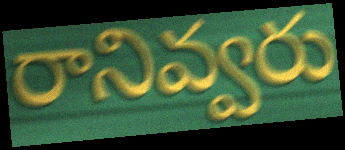
రానివ్వరు